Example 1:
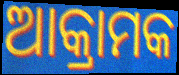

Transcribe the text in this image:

ଆକ୍ରାମକ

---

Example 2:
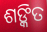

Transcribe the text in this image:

ଶଙ୍କିତ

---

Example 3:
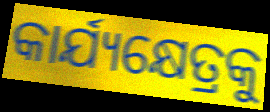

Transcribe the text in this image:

କାର୍ଯ୍ୟକ୍ଷେତ୍ରକୁ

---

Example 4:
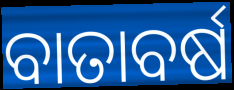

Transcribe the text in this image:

ବାତାବର୍ଷ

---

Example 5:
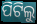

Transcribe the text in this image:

ପିଟିଲୁ